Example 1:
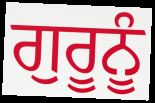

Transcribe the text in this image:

ਗੁਰੂਨੂੰ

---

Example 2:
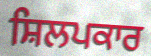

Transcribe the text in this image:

ਸ਼ਿਲਪਕਾਰ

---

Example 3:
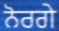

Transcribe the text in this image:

ਨੋਰਗੇ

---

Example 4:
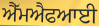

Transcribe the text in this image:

ਐੱਮਐਫਆਈ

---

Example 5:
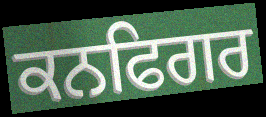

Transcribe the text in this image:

ਕਨਫਿਗਰ